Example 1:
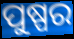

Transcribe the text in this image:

ପୁଷ୍ପର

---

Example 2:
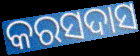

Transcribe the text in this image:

କରସଦାସ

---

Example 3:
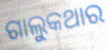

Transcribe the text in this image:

ଗାଲୁକଥାର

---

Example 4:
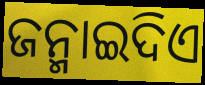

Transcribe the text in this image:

ଜନ୍ମାଇଦିଏ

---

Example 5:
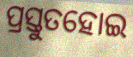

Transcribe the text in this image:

ପ୍ରସ୍ତୁତହୋଇ